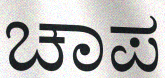
ಚಾಪ